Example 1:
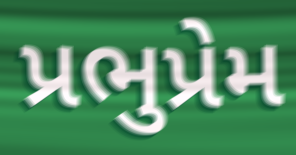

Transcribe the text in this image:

પ્રભુપ્રેમ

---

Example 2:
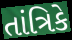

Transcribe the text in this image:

તાંત્રિકે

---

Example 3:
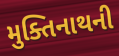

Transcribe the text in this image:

મુક્તિનાથની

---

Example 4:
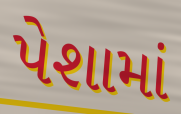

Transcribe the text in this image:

પેશામાં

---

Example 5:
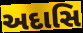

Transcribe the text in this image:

અદાસિ